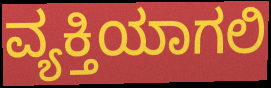
ವ್ಯಕ್ತಿಯಾಗಲಿ